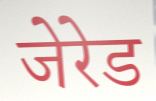
जेरेड